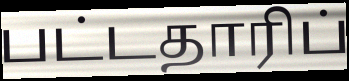
பட்டதாரிப்